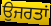
ਉਜਰਤਾਂ